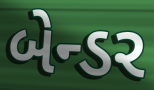
બેન્ડર